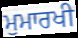
ਮੁਮਾਰਖੀ